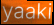
yaaki